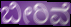
ಬೀರಿವೆ